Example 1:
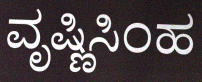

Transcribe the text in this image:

ವೃಷ್ಣಿಸಿಂಹ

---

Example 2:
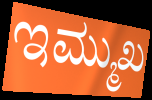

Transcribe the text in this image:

ಇಮ್ಮುಖ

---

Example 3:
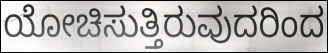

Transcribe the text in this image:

ಯೋಚಿಸುತ್ತಿರುವುದರಿಂದ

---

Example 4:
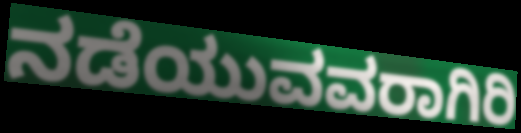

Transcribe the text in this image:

ನಡೆಯುವವರಾಗಿರಿ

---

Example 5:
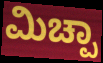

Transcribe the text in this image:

ಮಿಚ್ಪಾ